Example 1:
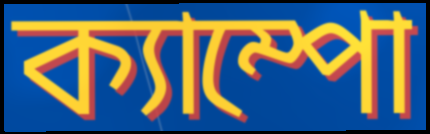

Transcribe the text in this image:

ক্যাম্পো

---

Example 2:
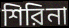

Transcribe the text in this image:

শিরিনা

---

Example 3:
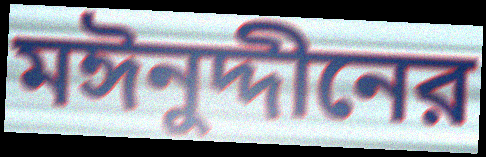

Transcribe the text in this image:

মঈনুদ্দীনের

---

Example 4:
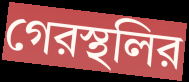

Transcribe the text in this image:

গেরস্থলির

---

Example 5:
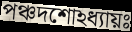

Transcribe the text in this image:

পঞ্চদশোঽধ্যায়ঃ